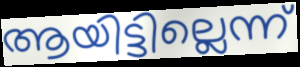
ആയിട്ടില്ലെന്ന്